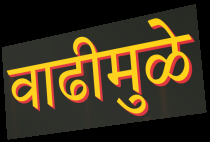
वाढीमुळे